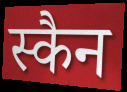
स्कैन